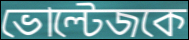
ভোল্টেজকে